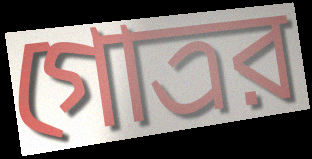
গোত্রর